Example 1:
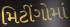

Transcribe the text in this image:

મિટીંગોમાં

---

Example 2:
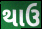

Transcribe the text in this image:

થાઉ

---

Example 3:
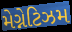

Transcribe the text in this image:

મેગ્નેટિઝમ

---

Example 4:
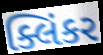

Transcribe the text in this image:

ક્લિંકર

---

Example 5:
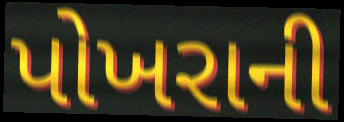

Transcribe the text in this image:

પોખરાની